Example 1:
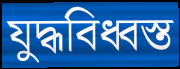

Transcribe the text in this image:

যুদ্ধবিধ্বস্ত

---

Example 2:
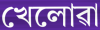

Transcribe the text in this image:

খেলোৱা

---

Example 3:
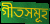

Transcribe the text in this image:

গীতসমূহ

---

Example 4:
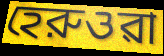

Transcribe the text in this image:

হেৰুওৱা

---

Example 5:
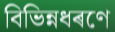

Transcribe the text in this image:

বিভিন্নধৰণে